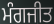
ਮੰਗਜੀਤ